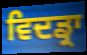
ਵਿਦਡ੍ਰਾ